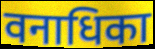
वनाधिका